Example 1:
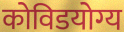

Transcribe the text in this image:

कोविडयोग्य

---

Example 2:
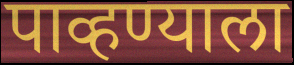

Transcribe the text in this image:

पाव्हण्याला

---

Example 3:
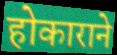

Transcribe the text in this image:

होकाराने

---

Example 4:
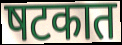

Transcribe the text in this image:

षटकात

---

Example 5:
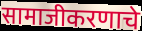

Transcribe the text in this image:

सामाजीकरणाचे